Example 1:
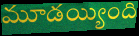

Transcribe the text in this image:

మూడయ్యింది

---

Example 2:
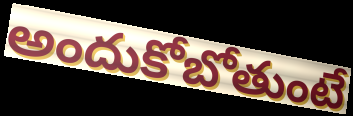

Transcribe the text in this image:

అందుకోబోతుంటే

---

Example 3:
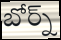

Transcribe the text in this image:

బోర్న్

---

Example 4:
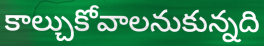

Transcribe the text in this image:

కాల్చుకోవాలనుకున్నది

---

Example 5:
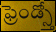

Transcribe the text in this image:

ఫ్రెండ్స్తో